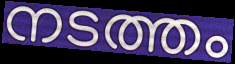
നടത്തം